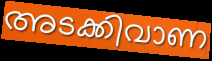
അടക്കിവാണ